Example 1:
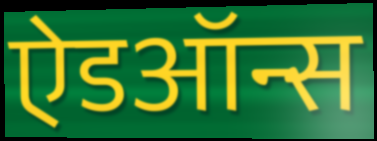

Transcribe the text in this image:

ऐडऑन्स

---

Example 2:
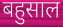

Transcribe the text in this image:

बहुसाल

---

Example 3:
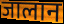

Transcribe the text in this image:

जालान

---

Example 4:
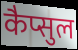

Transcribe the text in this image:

कैप्सुल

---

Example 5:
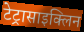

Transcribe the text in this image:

टेट्रासाइक्लिन